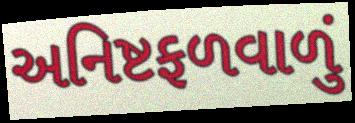
અનિષ્ટફળવાળું